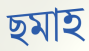
ছমাহ